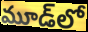
మూడ్‌లో